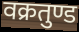
वक्रतुण्ड